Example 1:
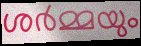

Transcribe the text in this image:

ശർമ്മയും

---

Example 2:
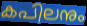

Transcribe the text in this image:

കപിലനും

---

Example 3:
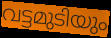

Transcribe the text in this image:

വട്ടമുടിയും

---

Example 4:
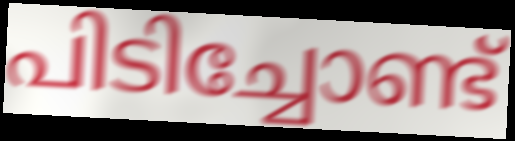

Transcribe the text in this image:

പിടിച്ചോണ്ട്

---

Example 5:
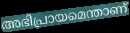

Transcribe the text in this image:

അഭിപ്രായമെന്താണ്